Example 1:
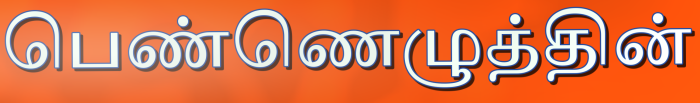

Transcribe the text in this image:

பெண்ணெழுத்தின்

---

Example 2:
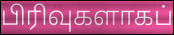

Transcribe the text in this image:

பிரிவுகளாகப்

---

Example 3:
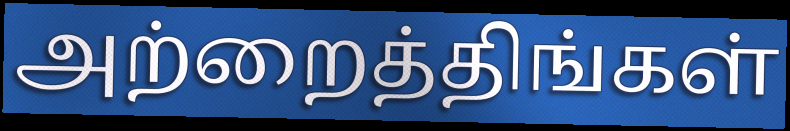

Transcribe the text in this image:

அற்றைத்திங்கள்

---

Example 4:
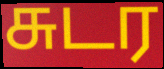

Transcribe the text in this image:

சுடர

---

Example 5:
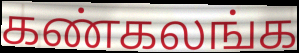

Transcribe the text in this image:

கண்கலங்க